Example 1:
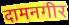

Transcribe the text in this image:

दामनगीर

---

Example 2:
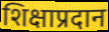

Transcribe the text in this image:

शिक्षाप्रदान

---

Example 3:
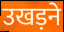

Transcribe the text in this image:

उखड़ने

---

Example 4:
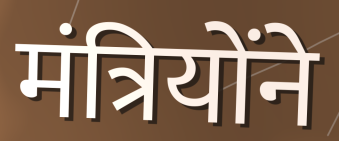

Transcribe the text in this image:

मंत्रियोंने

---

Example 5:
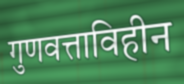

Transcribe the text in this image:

गुणवत्ताविहीन